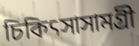
চিকিৎসাসামগ্রী